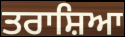
ਤਰਾਸ਼ਿਆ